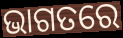
ଭାଗତରେ